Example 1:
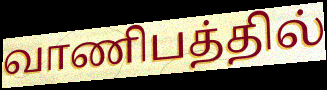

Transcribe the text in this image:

வாணிபத்தில்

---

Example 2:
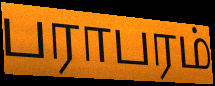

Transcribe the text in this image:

பராபரம்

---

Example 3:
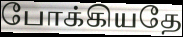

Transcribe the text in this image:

போக்கியதே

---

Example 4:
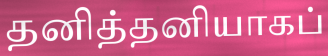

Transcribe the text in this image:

தனித்தனியாகப்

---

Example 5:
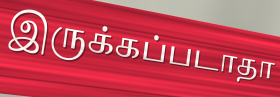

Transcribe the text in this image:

இருக்கப்படாதா